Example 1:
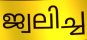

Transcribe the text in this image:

ജ്വലിച്ച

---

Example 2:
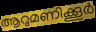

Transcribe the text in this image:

ആറുമണിക്കൂർ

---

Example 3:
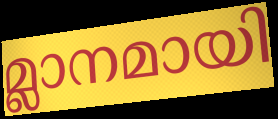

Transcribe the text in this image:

മ്ലാനമായി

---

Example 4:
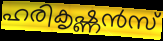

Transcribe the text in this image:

ഹരികൃഷ്ണൻസ്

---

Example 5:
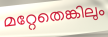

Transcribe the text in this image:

മറ്റേതെങ്കിലും